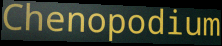
Chenopodium